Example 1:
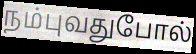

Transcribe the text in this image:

நம்புவதுபோல்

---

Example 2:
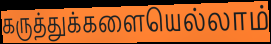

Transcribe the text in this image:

கருத்துக்களையெல்லாம்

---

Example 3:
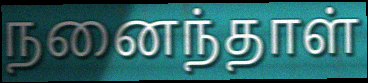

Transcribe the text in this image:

நனைந்தாள்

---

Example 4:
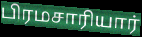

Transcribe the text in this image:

பிரமசாரியார்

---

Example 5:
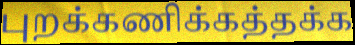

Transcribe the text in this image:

புறக்கணிக்கத்தக்க